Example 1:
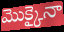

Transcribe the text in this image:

మొక్కైనా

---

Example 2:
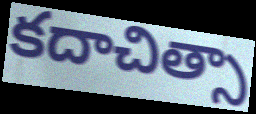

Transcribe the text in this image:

కదాచిత్సా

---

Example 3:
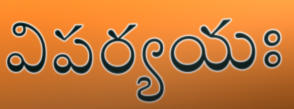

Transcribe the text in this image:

విపర్యయః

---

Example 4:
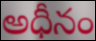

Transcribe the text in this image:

అధీనం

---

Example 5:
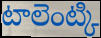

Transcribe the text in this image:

టాలెంట్కి